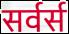
सर्वर्स